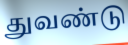
துவண்டு